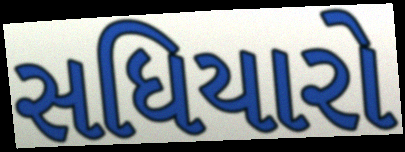
સધિયારો